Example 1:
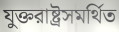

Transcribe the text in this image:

যুক্তরাষ্ট্রসমর্থিত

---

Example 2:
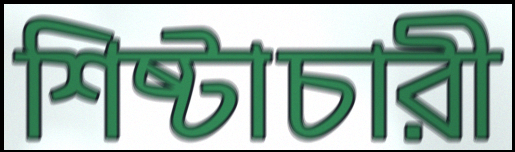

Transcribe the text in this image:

শিষ্টাচারী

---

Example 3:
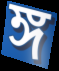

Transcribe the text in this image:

ঙ্গ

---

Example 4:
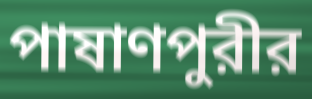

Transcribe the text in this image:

পাষাণপুরীর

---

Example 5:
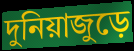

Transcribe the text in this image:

দুনিয়াজুড়ে